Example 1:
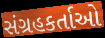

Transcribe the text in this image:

સંગ્રહકર્તાઓ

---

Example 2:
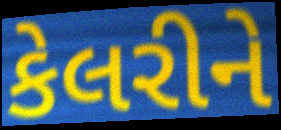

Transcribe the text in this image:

કેલરીને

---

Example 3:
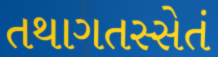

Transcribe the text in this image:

તથાગતસ્સેતં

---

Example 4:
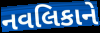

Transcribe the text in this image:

નવલિકાને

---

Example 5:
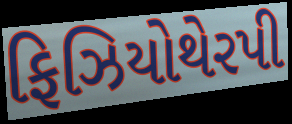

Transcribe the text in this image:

ફિઝિયોથેરપી